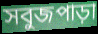
সবুজপাড়া